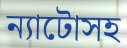
ন্যাটোসহ